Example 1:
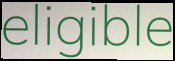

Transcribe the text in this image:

eligible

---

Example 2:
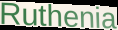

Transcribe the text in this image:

Ruthenia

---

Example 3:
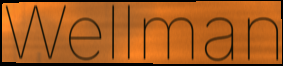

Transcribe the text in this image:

Wellman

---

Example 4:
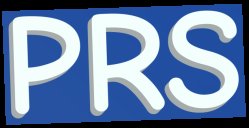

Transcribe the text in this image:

PRS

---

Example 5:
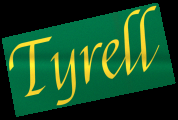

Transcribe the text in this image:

Tyrell